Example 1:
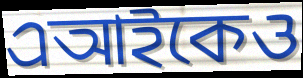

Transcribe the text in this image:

এআইকেও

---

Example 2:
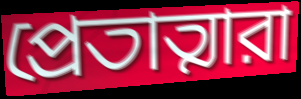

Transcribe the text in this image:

প্রেতাত্মারা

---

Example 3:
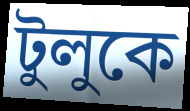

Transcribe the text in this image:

টুলুকে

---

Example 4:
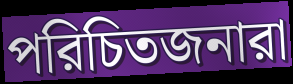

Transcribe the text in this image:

পরিচিতজনারা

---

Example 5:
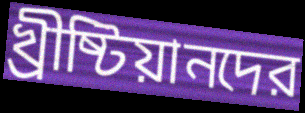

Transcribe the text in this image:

খ্রীষ্টিয়ানদের